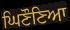
ਘਿਣੌਣਿਆ